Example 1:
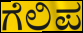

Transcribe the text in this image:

ಗೆಲಿಪ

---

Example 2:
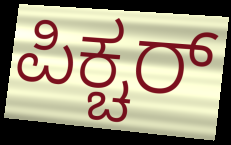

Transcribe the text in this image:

ಪಿಕ್ಚರ್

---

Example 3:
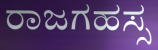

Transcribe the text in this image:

ರಾಜಗಹಸ್ಸ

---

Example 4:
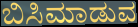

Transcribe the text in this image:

ಬಿಸಿಮಾಡುವ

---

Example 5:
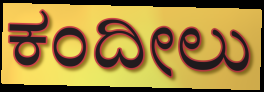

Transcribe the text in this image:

ಕಂದೀಲು